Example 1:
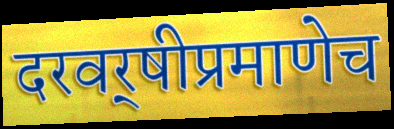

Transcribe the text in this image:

दरवर्षीप्रमाणेच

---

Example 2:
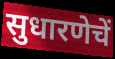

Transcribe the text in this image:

सुधारणेचें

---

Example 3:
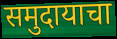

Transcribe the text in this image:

समुदायाचा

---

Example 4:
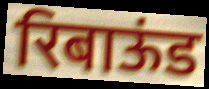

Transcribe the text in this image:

रिबाऊंड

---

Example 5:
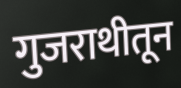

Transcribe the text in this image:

गुजराथीतून